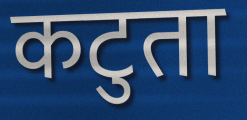
कटुता